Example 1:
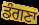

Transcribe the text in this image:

ਡੰਗਣਾ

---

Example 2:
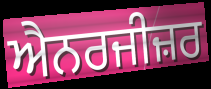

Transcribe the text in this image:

ਐਨਰਜੀਜ਼ਰ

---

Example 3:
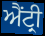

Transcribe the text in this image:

ਐਂਟ੍ਰੀ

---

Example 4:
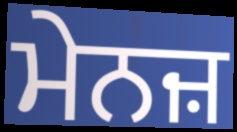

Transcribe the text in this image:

ਮੇਨਜ਼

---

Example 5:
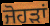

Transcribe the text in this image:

ਜੋਹੜਾਂ